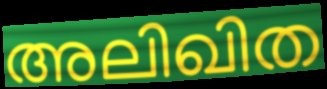
അലിഖിത